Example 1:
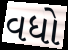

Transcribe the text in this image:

વધો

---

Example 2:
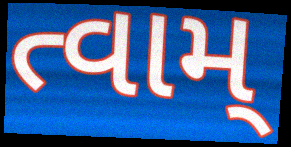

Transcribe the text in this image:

ત્વામ્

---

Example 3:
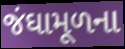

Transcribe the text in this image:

જંઘામૂળના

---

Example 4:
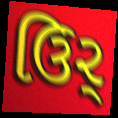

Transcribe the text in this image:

ઉિર્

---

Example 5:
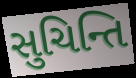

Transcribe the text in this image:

સુચિન્તિ